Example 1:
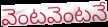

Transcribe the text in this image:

వెంటవెంటనే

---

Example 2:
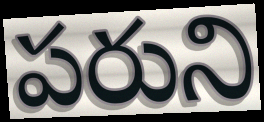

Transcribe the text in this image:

పరుని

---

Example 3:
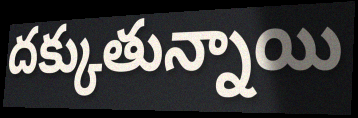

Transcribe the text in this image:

దక్కుతున్నాయి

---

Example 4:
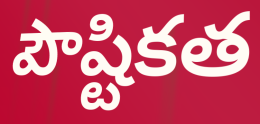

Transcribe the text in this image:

పౌష్టికత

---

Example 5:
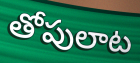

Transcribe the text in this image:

తోపులాట